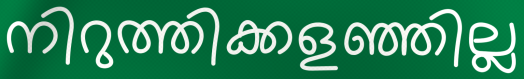
നിറുത്തിക്കളഞ്ഞില്ല